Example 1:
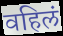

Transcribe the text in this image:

वहिलं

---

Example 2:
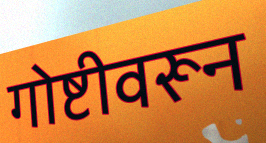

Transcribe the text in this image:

गोष्टीवरून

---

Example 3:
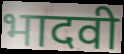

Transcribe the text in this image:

भादवी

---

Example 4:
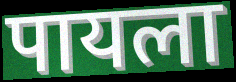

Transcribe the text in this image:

पायला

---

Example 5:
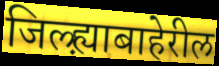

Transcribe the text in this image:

जिल्ह्य़ाबाहेरील